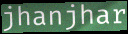
jhanjhar